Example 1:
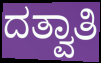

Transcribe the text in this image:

ದತ್ವಾತಿ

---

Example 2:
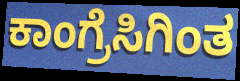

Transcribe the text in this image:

ಕಾಂಗ್ರೆಸಿಗಿಂತ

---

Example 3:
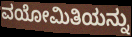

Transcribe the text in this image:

ವಯೋಮಿತಿಯನ್ನು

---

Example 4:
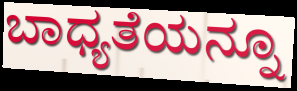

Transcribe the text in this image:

ಬಾಧ್ಯತೆಯನ್ನೂ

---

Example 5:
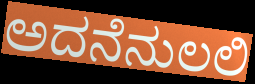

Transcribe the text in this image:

ಅದನೆನುಲಲಿ